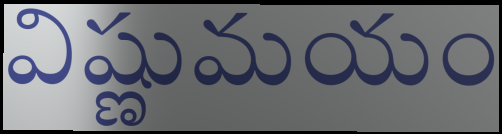
విష్ణుమయం